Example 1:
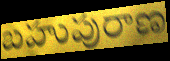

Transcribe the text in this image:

బహుపురాణ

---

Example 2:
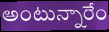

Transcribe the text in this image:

అంటున్నారేం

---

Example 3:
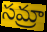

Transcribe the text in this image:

సమ్రా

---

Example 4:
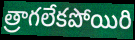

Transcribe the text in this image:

త్రాగలేకపోయిరి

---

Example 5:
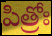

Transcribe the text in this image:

పిత్రోః